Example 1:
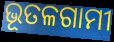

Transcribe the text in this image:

ଭୂତଳଗାମୀ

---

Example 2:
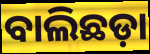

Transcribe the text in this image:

ବାଲିଛଡ଼ା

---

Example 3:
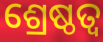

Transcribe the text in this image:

ଶ୍ରେଷ୍ଠତ୍ବ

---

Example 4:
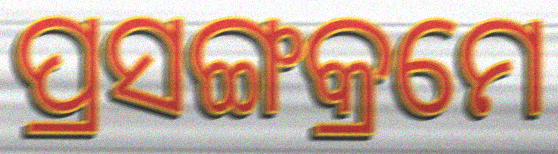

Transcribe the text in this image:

ପ୍ରସଙ୍ଗକ୍ରମେ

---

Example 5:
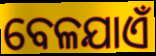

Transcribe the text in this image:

ବେଳଯାଏଁ